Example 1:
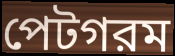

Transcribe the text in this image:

পেটগরম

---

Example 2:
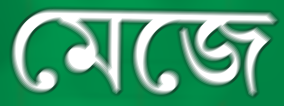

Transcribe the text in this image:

মেজে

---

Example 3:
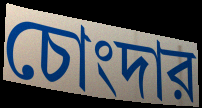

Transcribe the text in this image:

চোংদার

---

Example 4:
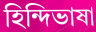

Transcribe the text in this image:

হিন্দিভাষা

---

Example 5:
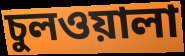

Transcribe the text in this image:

চুলওয়ালা